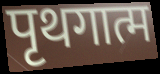
पृथगात्म